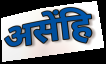
असेंहि